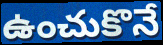
ఉంచుకొనే